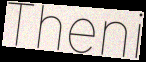
Theni